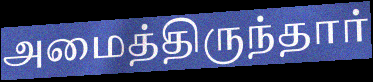
அமைத்திருந்தார்